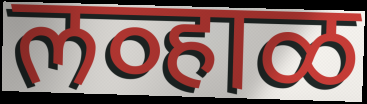
लव्हाळ